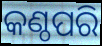
କଣ୍ଠପରି